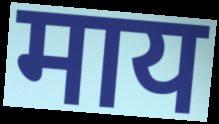
माय